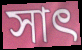
সাৎ